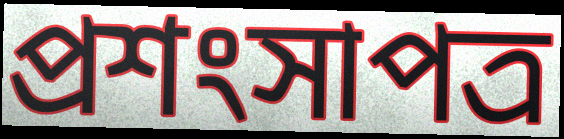
প্রশংসাপত্র